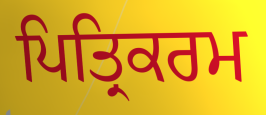
ਪਿਤ੍ਰਿਕਰਮ